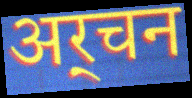
अर्चन